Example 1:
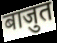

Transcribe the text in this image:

बाजुत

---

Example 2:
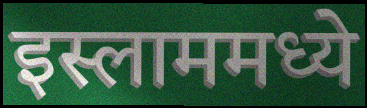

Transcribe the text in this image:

इस्लाममध्ये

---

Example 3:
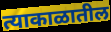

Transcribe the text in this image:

त्याकाळातील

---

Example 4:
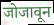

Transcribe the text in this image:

जोजावून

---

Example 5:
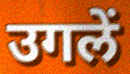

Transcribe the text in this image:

उगलें